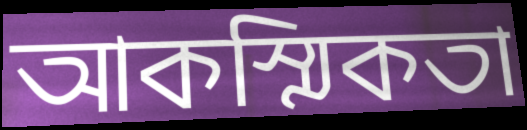
আকস্মিকতা